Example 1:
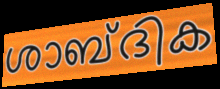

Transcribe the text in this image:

ശാബ്ദിക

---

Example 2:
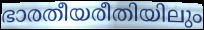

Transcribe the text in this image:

ഭാരതീയരീതിയിലും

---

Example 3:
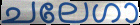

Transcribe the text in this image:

ചലേഗാ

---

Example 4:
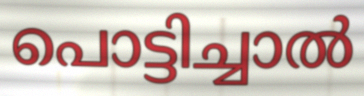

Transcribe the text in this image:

പൊട്ടിച്ചാൽ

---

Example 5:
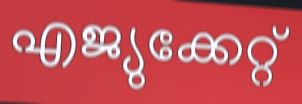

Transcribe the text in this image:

എജ്യുക്കേറ്റ്